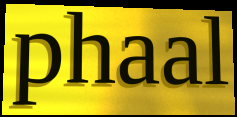
phaal